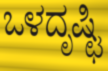
ಒಳದೃಷ್ಟಿ